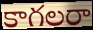
కాగలరా